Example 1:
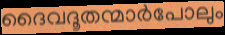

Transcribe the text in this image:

ദൈവദൂതന്മാർപോലും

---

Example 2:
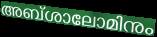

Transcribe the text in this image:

അബ്ശാലോമിനും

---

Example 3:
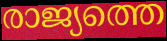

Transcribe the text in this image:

രാജ്യത്തെ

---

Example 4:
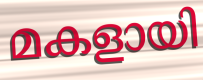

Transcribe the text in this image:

മകളായി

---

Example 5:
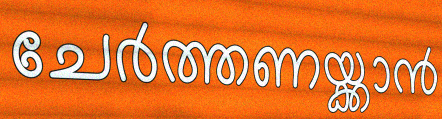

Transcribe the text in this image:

ചേർത്തണയ്ക്കാൻ